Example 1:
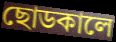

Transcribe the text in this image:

ছোডকালে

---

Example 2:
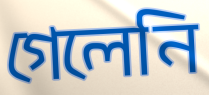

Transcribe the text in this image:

গেলেনি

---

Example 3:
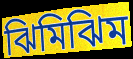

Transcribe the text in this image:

ঝিমিঝিম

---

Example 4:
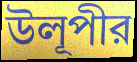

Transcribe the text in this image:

উলূপীর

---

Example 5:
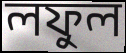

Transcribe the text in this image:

লফুল